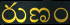
రుణం